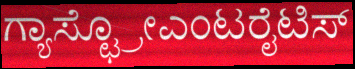
ಗ್ಯಾಸ್ಟ್ರೋಎಂಟರೈಟಿಸ್